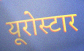
यूरोस्टार